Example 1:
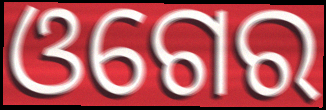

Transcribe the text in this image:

ଓଗେର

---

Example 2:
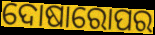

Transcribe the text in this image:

ଦୋଷାରୋପର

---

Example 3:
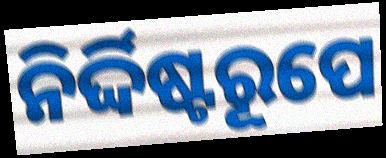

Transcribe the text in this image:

ନିର୍ଦ୍ଦିଷ୍ଟରୂପେ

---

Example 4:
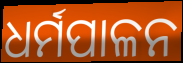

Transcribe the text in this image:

ଧର୍ମପାଳନ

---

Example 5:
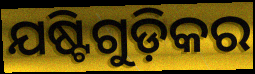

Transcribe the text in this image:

ଯଷ୍ଟିଗୁଡ଼ିକର